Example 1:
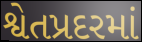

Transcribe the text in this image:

શ્વેતપ્રદરમાં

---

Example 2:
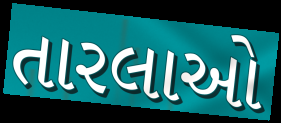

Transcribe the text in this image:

તારલાઓ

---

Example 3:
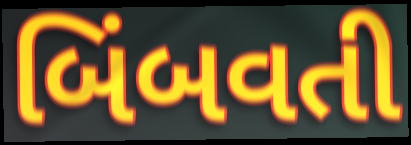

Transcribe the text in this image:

બિંબવતી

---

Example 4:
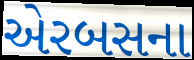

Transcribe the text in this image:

એરબસના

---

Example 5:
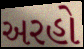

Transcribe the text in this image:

અરહો